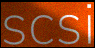
scsi